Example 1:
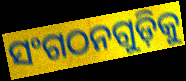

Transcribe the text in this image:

ସଂଗଠନଗୁଡ଼ିକୁ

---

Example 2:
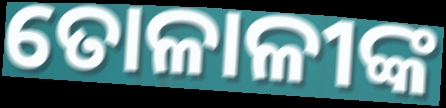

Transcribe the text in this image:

ତୋଳାଳୀଙ୍କ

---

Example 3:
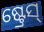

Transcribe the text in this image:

ଷ୍ଟ୍ରେସ୍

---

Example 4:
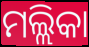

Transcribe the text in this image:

ମଲ୍ଲିକା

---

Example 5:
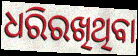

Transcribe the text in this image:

ଧରିରଖିଥିବା